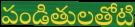
పండితులతోటి